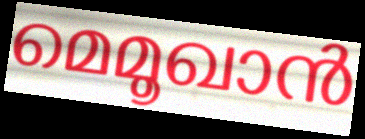
മെമൂഖാൻ